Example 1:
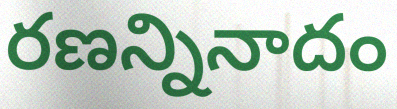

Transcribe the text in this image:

రణన్నినాదం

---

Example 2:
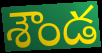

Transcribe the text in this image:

శౌండ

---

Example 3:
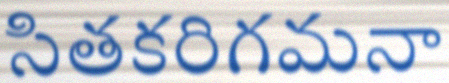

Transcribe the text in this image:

సితకరిగమనా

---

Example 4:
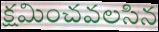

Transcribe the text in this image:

క్షమించవలసిన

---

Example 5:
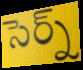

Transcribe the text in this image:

సెర్న్